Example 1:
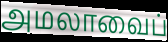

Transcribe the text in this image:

அமலாவைப்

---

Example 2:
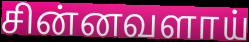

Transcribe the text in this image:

சின்னவளாய்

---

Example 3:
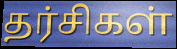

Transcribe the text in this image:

தர்சிகள்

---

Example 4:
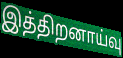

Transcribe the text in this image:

இத்திறனாய்வு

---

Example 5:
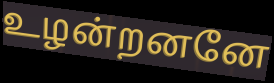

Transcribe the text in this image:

உழன்றனனே